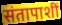
संतापाशीं